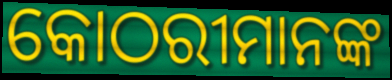
କୋଠରୀମାନଙ୍କ